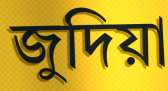
জুদিয়া